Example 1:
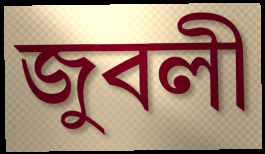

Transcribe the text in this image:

জুবলী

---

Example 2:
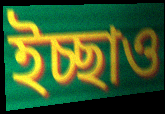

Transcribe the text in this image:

ইচ্ছাও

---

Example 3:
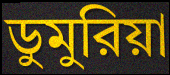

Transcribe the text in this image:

ডুমুরিয়া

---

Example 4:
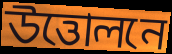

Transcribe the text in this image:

উত্তোলনে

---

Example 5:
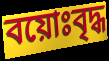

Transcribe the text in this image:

বয়োঃবৃদ্ধ